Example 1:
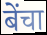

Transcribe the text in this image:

बेंचा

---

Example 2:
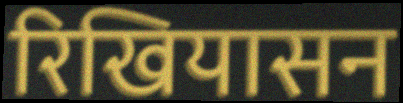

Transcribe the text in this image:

रिखियासन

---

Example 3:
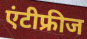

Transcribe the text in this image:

एंटीफ्रीज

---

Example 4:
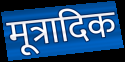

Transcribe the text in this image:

मूत्रादिक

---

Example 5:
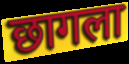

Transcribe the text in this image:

छागला